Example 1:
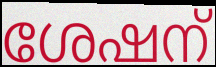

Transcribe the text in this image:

ശേഷന്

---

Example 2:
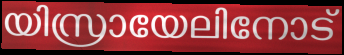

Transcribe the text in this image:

യിസ്രായേലിനോട്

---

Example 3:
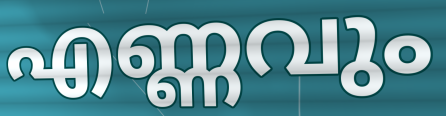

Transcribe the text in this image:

എണ്ണവും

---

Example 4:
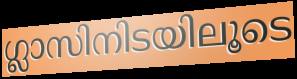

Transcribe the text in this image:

ഗ്ലാസിനിടയിലൂടെ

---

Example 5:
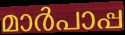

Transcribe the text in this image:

മാർപാപ്പ